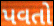
પવતો